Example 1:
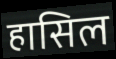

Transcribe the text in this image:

हासिल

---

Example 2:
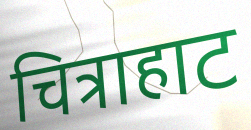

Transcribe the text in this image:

चित्राहाट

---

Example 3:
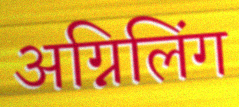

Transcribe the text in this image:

अग्निलिंग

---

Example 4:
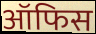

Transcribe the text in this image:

ऑफिस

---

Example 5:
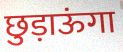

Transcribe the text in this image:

छुड़ाऊंगा